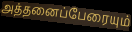
அத்தனைப்பேரையும்